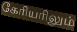
கேரியரிலும்